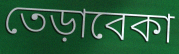
তেড়াবেকা